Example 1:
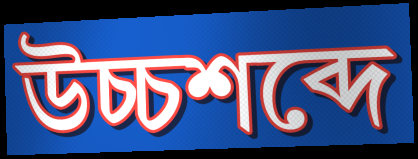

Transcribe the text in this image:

উচ্চশব্দে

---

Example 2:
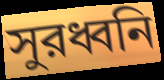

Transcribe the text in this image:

সুরধ্বনি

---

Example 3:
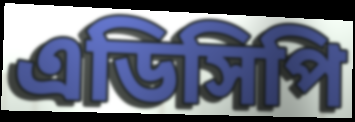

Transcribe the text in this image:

এডিসিপি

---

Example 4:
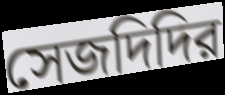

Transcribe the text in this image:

সেজদিদির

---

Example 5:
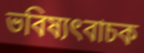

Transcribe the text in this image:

ভবিষ্যৎবাচক